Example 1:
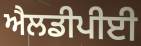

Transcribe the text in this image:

ਐਲਡੀਪੀਈ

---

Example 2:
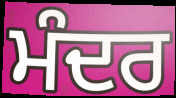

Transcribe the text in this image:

ਮੰਦਰ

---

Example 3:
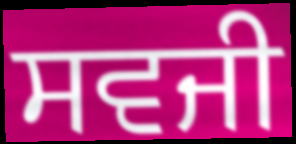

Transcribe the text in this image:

ਸਵਜੀ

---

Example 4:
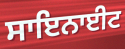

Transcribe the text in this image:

ਸਾਇਨਾਈਟ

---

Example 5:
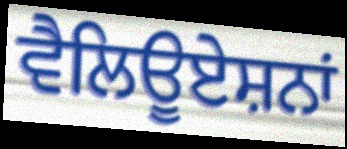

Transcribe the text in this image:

ਵੈਲਿਊਏਸ਼ਨਾਂ